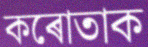
কৰোতাক